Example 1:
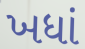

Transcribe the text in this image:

ખધાં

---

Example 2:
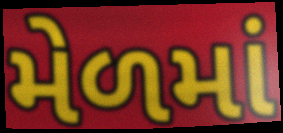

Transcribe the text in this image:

મેળમાં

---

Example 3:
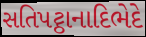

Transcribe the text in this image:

સતિપટ્ઠાનાદિભેદે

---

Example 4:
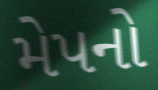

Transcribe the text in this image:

મેપનો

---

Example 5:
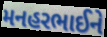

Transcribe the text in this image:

મનહરભાઈને